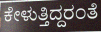
ಕೇಳುತ್ತಿದ್ದರಂತೆ